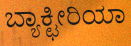
ಬ್ಯಾಕ್ಟೀರಿಯಾ